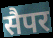
सैपर